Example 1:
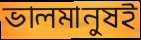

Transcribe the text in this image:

ভালমানুষই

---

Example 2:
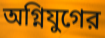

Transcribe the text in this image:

অগ্নিযুগের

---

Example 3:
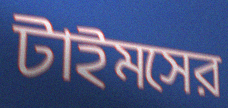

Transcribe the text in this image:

টাইমসের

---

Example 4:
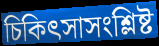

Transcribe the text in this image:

চিকিৎসাসংশ্লিষ্ট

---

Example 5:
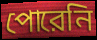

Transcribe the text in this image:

পোরেনি